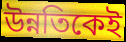
উন্নতিকেই